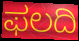
ಫಲದಿ